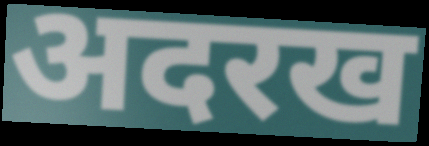
अदरख